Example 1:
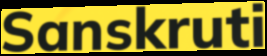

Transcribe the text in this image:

Sanskruti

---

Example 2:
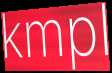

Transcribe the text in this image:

kmpl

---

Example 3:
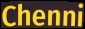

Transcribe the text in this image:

Chenni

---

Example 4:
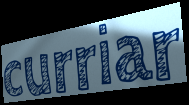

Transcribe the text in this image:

curriar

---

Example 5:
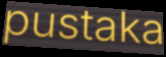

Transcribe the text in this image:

pustaka